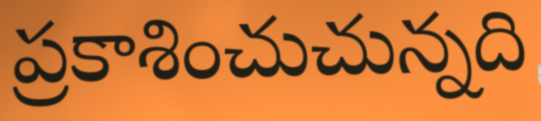
ప్రకాశించుచున్నది